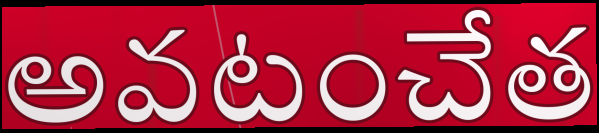
అవటంచేత